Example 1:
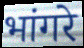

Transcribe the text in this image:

भांगरे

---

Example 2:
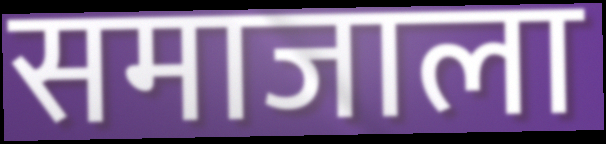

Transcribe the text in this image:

समाजाला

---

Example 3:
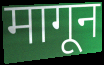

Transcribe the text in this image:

मागून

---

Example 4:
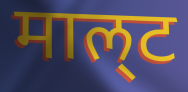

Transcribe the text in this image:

माल्ट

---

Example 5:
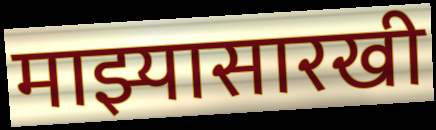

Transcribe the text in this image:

माझ्यासारखी